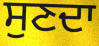
ਸੁਣਦਾ